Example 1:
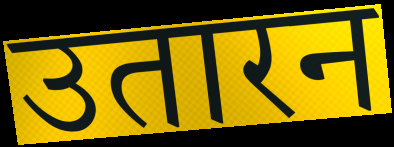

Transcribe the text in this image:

उतारन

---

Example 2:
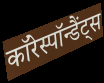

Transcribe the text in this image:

कॉरेस्पॉन्डैंट्स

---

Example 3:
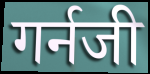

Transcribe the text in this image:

गर्नजी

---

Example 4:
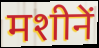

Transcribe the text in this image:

मशीनें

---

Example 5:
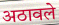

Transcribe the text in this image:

अठावले